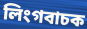
লিংগবাচক